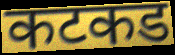
कटकड